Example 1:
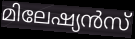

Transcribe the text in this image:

മിലേഷ്യൻസ്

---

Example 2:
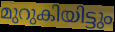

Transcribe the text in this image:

മുറുകിയിട്ടും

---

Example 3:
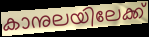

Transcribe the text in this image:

കാനുലയിലേക്ക്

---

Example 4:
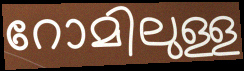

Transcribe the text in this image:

റോമിലുള്ള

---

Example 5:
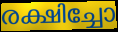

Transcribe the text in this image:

രക്ഷിച്ചോ